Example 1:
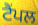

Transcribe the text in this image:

ਟੈਂਪਲ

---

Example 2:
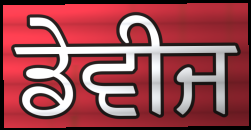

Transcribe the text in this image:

ਡੇਵੀਜ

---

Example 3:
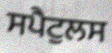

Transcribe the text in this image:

ਸਪੈਟੁਲਸ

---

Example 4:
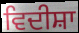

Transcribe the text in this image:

ਵਿਦੀਸ਼ਾ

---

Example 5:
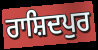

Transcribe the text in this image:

ਰਾਸ਼ਿਦਪੁਰ